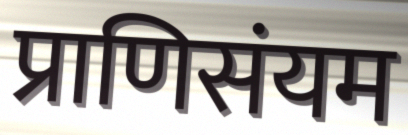
प्राणिसंयम